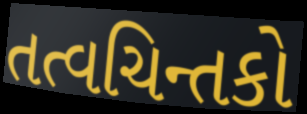
તત્વચિન્તકો